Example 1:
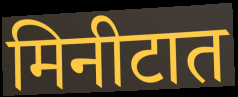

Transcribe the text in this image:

मिनीटात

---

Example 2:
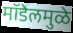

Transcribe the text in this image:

मॉडेलमुळे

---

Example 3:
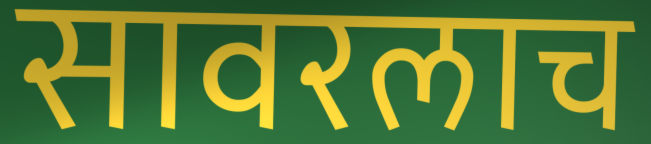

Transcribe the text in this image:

सावरलाच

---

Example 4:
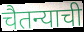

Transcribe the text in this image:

चैतन्याची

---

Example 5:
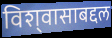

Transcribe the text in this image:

विश्वासाबद्दल